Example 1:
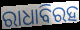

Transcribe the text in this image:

ରାଧାବିରହ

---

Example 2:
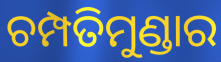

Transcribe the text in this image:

ଚମ୍ପତିମୁଣ୍ଡାର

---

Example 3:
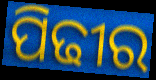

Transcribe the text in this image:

ପିଢୀର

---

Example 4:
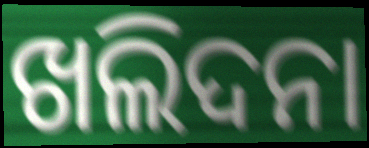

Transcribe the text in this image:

ଖଲିଦନା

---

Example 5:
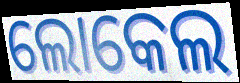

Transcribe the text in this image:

ଲୋକେଲ